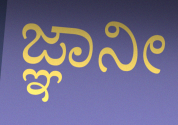
ಜ್ಞಾನೀ